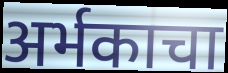
अर्भकाचा